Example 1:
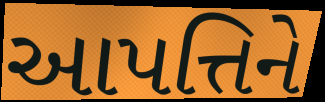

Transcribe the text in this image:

આપત્તિને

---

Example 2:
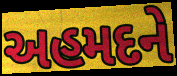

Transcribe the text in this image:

અહમદને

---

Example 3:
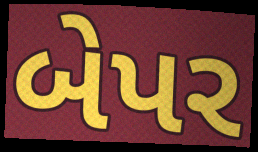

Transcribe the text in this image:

બેપર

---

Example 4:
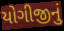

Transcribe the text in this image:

યોગીજીનું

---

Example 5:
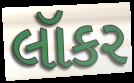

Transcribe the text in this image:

લૉકર